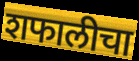
शफालीचा